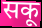
सकू